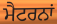
ਮੈਟਰਨਾਂ